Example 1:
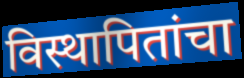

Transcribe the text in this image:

विस्थापितांचा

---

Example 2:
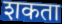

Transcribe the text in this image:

शकता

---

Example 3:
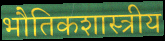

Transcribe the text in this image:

भौतिकशास्त्रीय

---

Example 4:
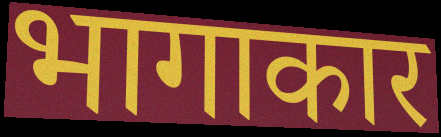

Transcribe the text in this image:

भागाकार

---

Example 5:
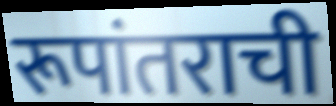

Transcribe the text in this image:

रूपांतराची